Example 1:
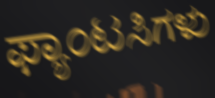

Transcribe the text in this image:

ಫ್ಯಾಂಟಸಿಗಳು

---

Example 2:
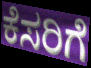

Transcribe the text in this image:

ಕೆಸರಿಗೆ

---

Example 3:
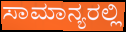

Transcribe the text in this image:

ಸಾಮಾನ್ಯರಲ್ಲಿ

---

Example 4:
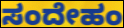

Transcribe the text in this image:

ಸಂದೇಹಂ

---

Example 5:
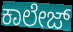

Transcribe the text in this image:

ಕಾಲೇಜ್